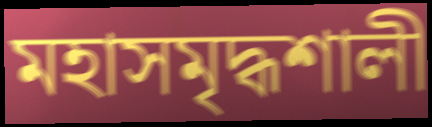
মহাসমৃদ্ধশালী